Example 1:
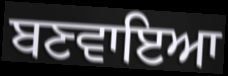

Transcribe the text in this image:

ਬਣਵਾਇਆ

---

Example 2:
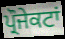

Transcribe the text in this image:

ਪ੍ਰੌਜੇਕਟਾਂ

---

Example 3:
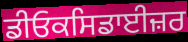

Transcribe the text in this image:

ਡੀਓਕਸਿਡਾਈਜ਼ਰ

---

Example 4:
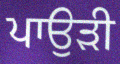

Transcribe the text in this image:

ਪਾਉੜੀ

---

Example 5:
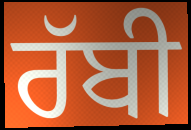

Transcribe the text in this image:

ਰੱਬੀ